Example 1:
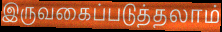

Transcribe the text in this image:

இருவகைப்படுத்தலாம்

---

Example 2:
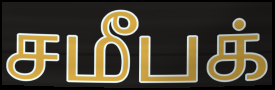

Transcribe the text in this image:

சமீபக்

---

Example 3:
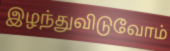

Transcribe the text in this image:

இழந்துவிடுவோம்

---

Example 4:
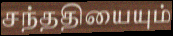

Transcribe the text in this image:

சந்ததியையும்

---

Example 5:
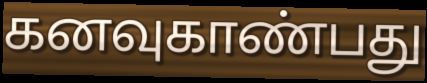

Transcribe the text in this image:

கனவுகாண்பது